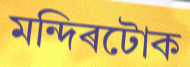
মন্দিৰটোক